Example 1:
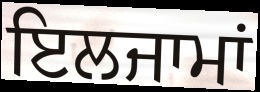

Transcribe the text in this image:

ਇਲਜਾਮਾਂ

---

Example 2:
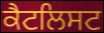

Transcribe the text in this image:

ਕੈਟਲਿਸਟ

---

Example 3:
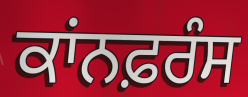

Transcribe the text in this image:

ਕਾਂਨਫ਼ਰੰਸ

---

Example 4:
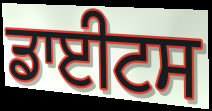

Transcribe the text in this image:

ਡਾਈਟਸ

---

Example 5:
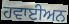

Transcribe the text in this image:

ਹਵਾਈਅਨ